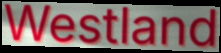
Westland